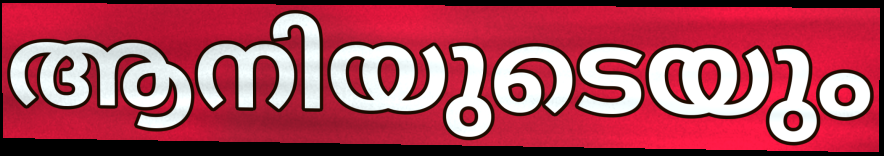
ആനിയുടെയും